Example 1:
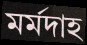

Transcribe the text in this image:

মর্মদাহ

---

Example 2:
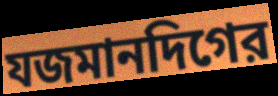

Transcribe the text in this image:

যজমানদিগের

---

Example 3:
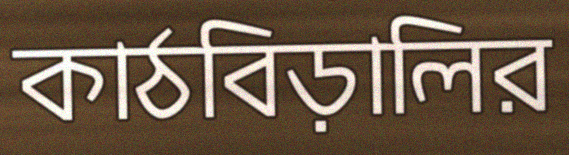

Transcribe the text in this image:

কাঠবিড়ালির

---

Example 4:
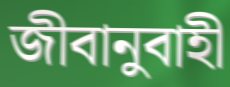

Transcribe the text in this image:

জীবানুবাহী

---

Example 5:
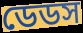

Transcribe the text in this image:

ডেডস